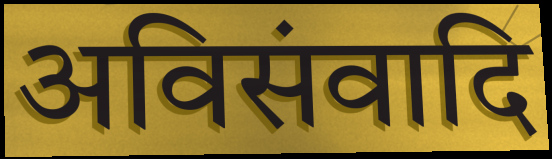
अविसंवादि